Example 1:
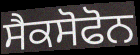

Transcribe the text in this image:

ਸੈਕਸੋਫੋਨ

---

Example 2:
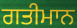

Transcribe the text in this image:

ਗਤੀਮਾਨ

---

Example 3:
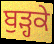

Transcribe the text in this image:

ਬੁੜ੍ਹਕੇ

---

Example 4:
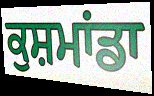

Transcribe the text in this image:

ਕੁਸ਼ਮਾਂਡਾ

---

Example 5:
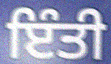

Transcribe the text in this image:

ਇੰਤੀ